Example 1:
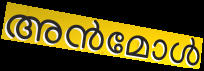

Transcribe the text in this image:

അൻമോൾ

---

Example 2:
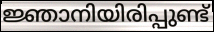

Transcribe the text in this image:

ജ്ഞാനിയിരിപ്പുണ്ട്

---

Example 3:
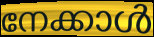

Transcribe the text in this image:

നേക്കാൾ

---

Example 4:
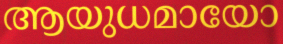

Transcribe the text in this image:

ആയുധമായോ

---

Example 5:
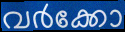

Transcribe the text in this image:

വർക്കോ